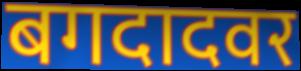
बगदादवर